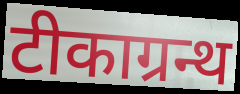
टीकाग्रन्थ